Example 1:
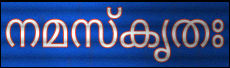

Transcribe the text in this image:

നമസ്കൃതഃ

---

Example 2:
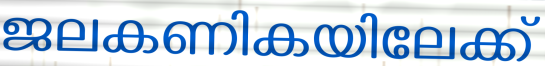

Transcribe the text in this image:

ജലകണികയിലേക്ക്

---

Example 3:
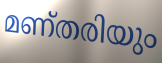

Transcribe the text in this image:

മണ്തരിയും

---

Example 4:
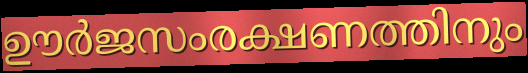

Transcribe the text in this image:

ഊർജസംരക്ഷണത്തിനും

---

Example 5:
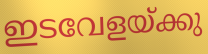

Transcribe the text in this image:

ഇടവേളയ്ക്കു